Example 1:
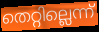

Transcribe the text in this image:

തെറ്റില്ലെന്ന്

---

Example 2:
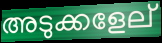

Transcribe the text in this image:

അടുക്കളേല്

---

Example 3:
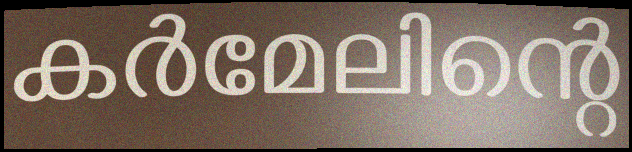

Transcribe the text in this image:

കർമേലിന്റെ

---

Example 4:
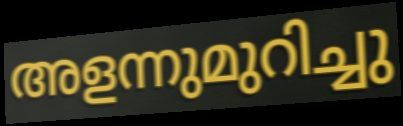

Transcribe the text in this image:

അളന്നുമുറിച്ചു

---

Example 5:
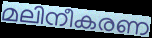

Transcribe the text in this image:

മലിനീകരണ